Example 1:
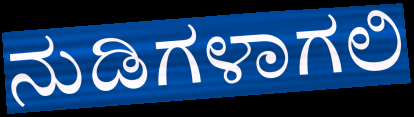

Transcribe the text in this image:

ನುಡಿಗಳಾಗಲಿ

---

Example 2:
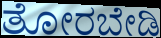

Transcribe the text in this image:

ತೋರಬೇಡಿ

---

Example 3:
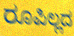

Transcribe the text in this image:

ರೂಪಿಲ್ಲದ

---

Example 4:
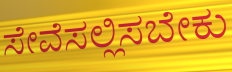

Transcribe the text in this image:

ಸೇವೆಸಲ್ಲಿಸಬೇಕು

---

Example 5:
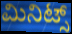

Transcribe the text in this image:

ಮಿನಿಟ್ಸ್